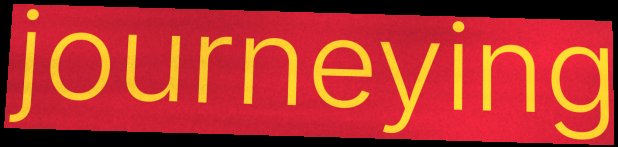
journeying